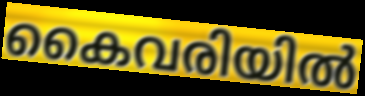
കൈവരിയിൽ